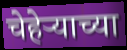
चेहेऱ्याच्या